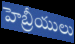
హెబ్రీయులు